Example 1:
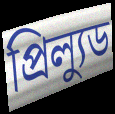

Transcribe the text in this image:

প্রিল্যুড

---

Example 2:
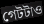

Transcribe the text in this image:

গেটটাও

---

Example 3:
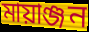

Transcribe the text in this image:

মায়াঞ্জন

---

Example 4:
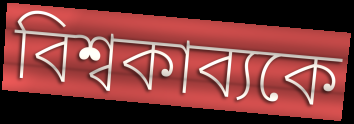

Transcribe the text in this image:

বিশ্বকাব্যকে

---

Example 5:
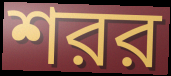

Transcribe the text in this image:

শরর